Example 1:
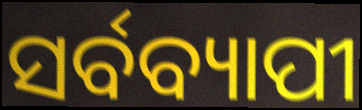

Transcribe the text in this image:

ସର୍ବବ୍ୟାପୀ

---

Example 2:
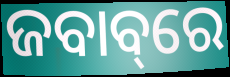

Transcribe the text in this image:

ଜବାବ୍‌ରେ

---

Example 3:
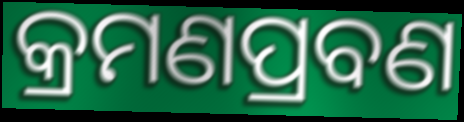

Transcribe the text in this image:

କ୍ରମଣପ୍ରବଣ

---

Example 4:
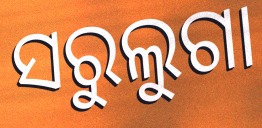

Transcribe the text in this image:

ସରୁଲୁଗା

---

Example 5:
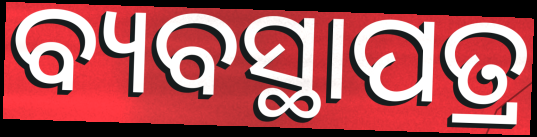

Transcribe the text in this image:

ବ୍ୟବସ୍ଥାପତ୍ର